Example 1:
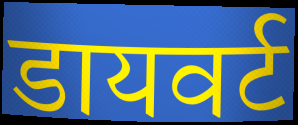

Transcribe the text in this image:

डायवर्ट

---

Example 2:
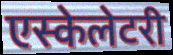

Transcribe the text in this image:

एस्केलेटरी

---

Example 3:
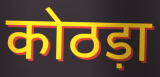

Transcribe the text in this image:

कोठड़ा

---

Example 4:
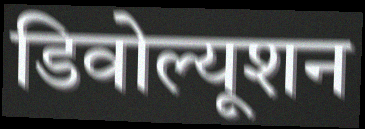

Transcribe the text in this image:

डिवोल्यूशन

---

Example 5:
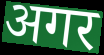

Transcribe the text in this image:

अगर